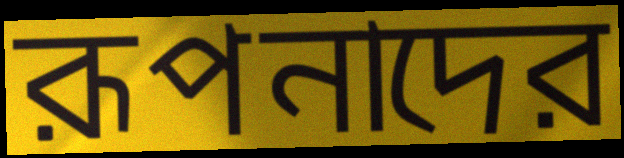
রূপনাদের